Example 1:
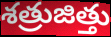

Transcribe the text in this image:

శత్రుజిత్తు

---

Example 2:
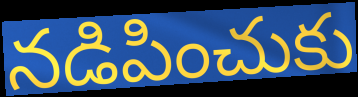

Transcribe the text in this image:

నడిపించుకు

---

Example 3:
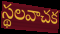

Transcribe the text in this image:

స్థలవాచక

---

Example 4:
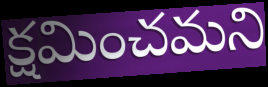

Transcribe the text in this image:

క్షమించమని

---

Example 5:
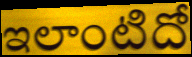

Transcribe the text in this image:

ఇలాంటిదో